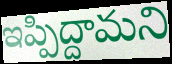
ఇప్పిద్దామని